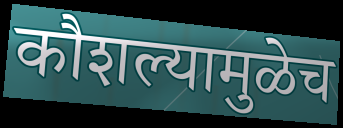
कौशल्यामुळेच